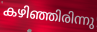
കഴിഞ്ഞിരിന്നു